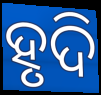
ହୃଦି